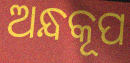
ଅନ୍ଧକୂପ